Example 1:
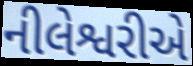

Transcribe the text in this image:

નીલેશ્વરીએ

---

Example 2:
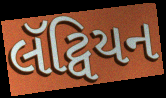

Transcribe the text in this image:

લૅટ્વિયન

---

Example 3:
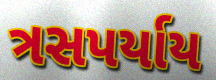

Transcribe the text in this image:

ત્રસપર્યાય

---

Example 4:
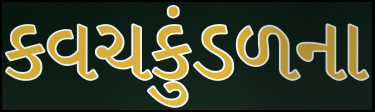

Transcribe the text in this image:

કવચકુંડળના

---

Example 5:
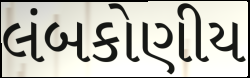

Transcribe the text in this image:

લંબકોણીય